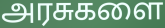
அரசுகளை